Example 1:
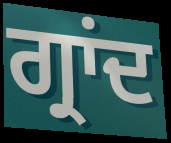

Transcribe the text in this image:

ਗ੍ਰਾਂਦ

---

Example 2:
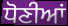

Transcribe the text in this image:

ਧੋਣੀਆਂ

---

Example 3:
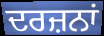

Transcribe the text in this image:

ਦਰਜ਼ਨਾਂ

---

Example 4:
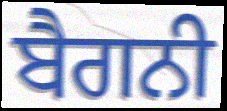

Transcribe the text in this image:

ਬੈਗਨੀ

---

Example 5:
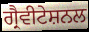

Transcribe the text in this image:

ਗ੍ਰੈਵੀਟੇਸ਼ਨਲ